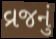
વ્રજનું